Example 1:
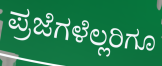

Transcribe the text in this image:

ಪ್ರಜೆಗಳೆಲ್ಲರಿಗೂ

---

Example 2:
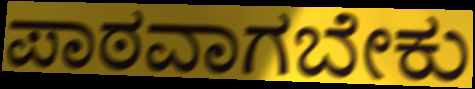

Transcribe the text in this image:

ಪಾಠವಾಗಬೇಕು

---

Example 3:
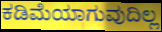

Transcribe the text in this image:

ಕಡಿಮೆಯಾಗುವುದಿಲ್ಲ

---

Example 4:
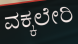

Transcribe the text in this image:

ವಕ್ಕಲೇರಿ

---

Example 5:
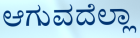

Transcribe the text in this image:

ಆಗುವದೆಲ್ಲಾ